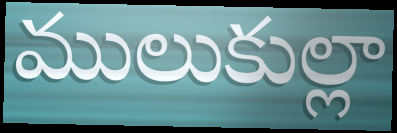
ములుకుల్లా